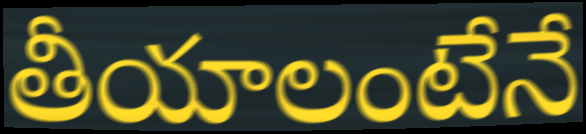
తీయాలంటేనే